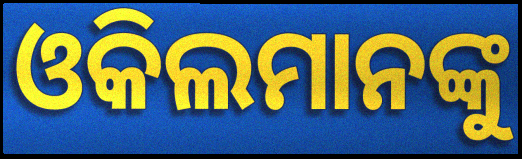
ଓକିଲମାନଙ୍କୁ